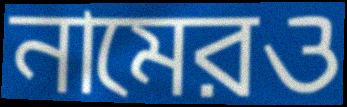
নামেরও